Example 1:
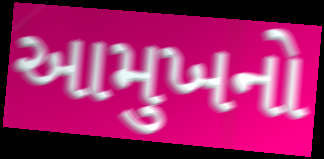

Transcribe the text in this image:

આમુખનો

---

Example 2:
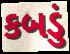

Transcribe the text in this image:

કબડું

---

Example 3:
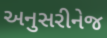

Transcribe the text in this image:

અનુસરીનેજ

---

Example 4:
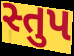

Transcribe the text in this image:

સ્તુપ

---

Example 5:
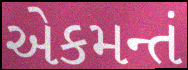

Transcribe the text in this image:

એકમન્તં